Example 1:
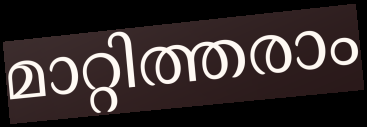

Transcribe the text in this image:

മാറ്റിത്തരാം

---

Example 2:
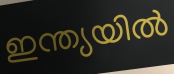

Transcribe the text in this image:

ഇന്ത്യയിൽ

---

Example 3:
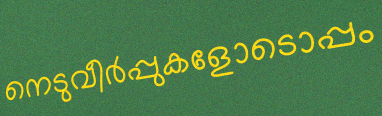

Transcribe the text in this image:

നെടുവീർപ്പുകളോടൊപ്പം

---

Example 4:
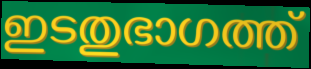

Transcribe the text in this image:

ഇടതുഭാഗത്ത്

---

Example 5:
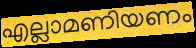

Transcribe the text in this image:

എല്ലാമണിയണം